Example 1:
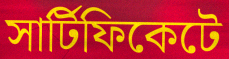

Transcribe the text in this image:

সার্টিফিকেটে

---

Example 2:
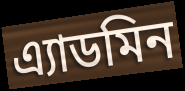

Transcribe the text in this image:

এ্যাডমিন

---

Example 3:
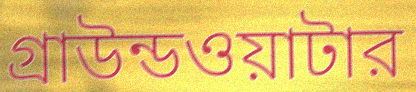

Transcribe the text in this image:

গ্রাউন্ডওয়াটার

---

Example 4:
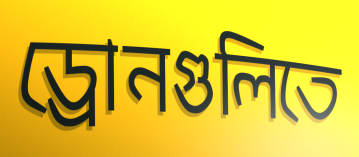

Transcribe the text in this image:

ড্রোনগুলিতে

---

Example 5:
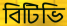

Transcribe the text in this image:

বিটিভি